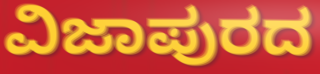
ವಿಜಾಪುರದ